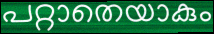
പറ്റാതെയാകും